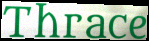
Thrace